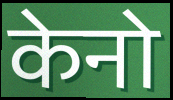
केनो